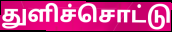
துளிச்சொட்டு